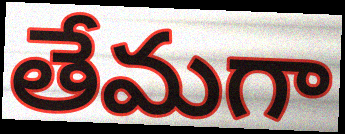
తేమగా